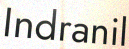
Indranil